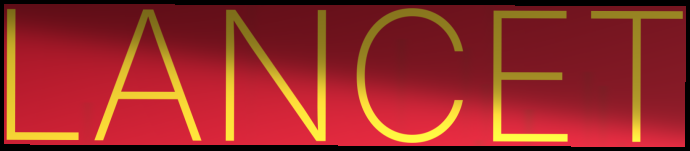
LANCET